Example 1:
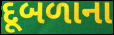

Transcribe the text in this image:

દૂબળાના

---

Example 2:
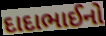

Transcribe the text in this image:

દાદાભાઈનો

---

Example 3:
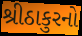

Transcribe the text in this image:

શ્રીઠાકુરનો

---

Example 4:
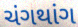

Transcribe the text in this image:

ચંગથાંગ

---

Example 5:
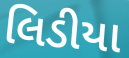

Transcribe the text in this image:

લિડીયા